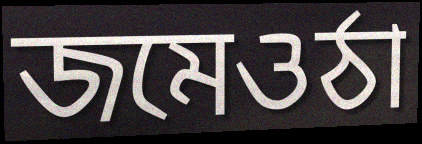
জমেওঠা